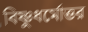
বিষ্ণুধর্মোত্তর